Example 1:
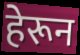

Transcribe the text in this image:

हेरून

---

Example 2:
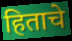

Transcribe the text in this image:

हिताचे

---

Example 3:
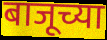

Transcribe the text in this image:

बाजूच्या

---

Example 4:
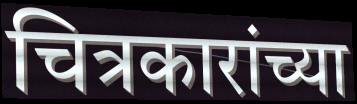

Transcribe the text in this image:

चित्रकारांच्या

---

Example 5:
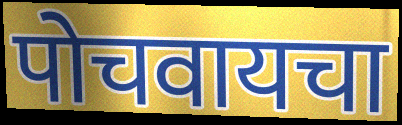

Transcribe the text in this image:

पोचवायचा